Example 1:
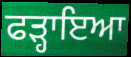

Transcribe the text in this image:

ਫੜ੍ਹਾਇਆ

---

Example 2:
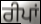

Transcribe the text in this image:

ਰੀਪਾਂ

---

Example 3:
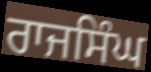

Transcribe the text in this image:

ਰਾਜਸਿੰਘ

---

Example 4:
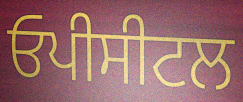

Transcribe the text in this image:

ਓਪੀਸੀਟਲ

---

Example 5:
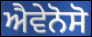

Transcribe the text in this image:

ਐਵੇਨੋਸੋ